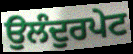
ਉਲੰਦੁਰਪੇਟ